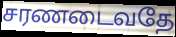
சரணடைவதே